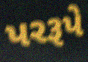
પરરૂપે